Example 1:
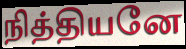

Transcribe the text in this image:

நித்தியனே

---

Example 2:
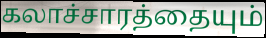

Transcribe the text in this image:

கலாச்சாரத்தையும்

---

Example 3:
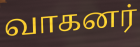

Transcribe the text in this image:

வாகனர்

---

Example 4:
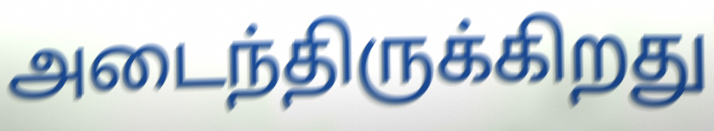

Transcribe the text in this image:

அடைந்திருக்கிறது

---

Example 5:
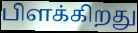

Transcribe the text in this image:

பிளக்கிறது